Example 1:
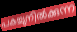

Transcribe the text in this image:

പകച്ചുനിൽക്കുന്ന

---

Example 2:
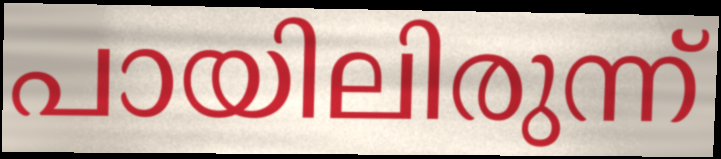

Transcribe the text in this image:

പായിലിരുന്ന്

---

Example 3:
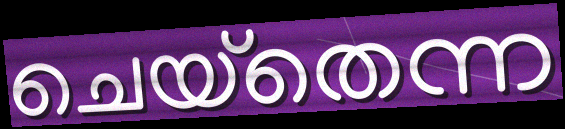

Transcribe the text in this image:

ചെയ്‌തെന്ന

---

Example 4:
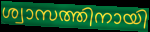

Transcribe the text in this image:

ശ്വാസത്തിനായി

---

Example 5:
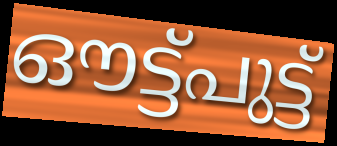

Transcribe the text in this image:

ഔട്ട്പുട്ട്